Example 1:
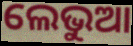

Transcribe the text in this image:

ଲେଭୁଆ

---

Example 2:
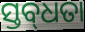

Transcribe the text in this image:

ସ୍ତବ୍‌ଧତା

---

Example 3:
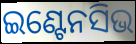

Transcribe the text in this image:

ଇଣ୍ଟେନସିଭ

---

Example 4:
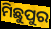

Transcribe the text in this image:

ମିଛୁପୁର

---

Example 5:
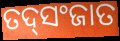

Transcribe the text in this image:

ତଦ୍‌ସଂଜାତ